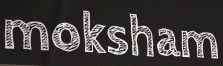
moksham